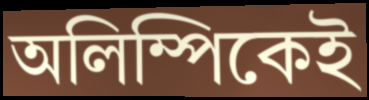
অলিম্পিকেই